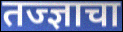
तज्ज्ञाचा